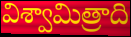
విశ్వామిత్రాది